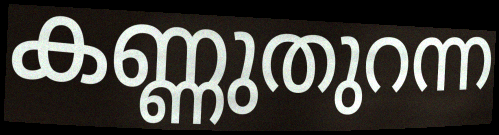
കണ്ണുതുറന്ന